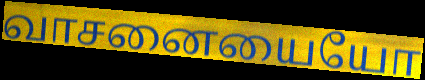
வாசனையையோ